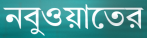
নবুওয়াতের